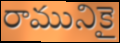
రామునికై